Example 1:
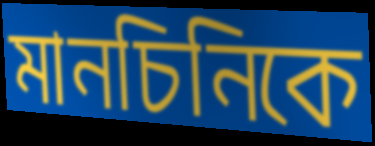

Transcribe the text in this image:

মানচিনিকে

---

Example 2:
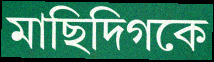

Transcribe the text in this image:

মাছিদিগকে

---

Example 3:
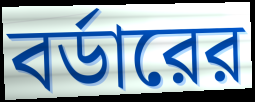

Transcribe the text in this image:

বর্ডারের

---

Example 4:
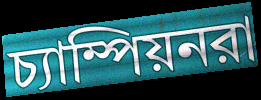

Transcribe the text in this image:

চ্যাম্পিয়নরা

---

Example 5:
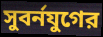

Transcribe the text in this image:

সুবর্নযুগের